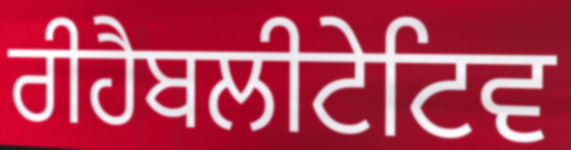
ਰੀਹੈਬਲੀਟੇਟਿਵ